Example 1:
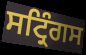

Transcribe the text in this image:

ਸਟ੍ਰਿੰਗਸ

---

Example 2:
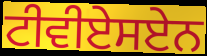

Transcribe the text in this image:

ਟੀਵੀਏਸਏਨ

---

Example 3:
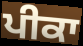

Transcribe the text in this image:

ਪੀਕਾ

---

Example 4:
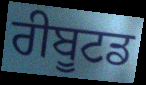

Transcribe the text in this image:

ਰੀਬੂਟਡ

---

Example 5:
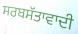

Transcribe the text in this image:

ਸਰਬਸੱਤਾਵਾਦੀ